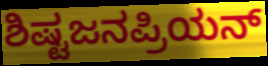
ಶಿಷ್ಟಜನಪ್ರಿಯನ್